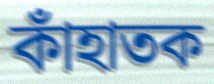
কাঁহাতক